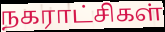
நகராட்சிகள்